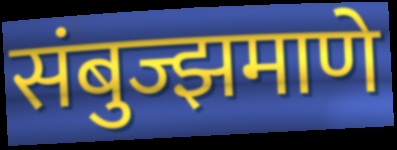
संबुज्झमाणे